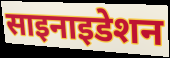
साइनाइडेशन